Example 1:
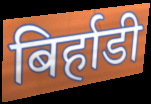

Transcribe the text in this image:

बिर्हाडी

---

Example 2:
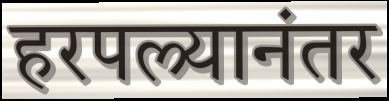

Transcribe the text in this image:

हरपल्यानंतर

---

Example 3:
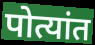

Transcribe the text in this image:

पोत्यांत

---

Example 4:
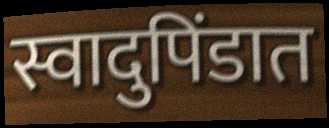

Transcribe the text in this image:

स्वादुपिंडात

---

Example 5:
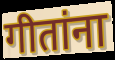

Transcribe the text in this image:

गीतांना